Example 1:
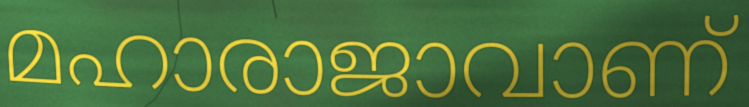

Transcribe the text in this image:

മഹാരാജാവാണ്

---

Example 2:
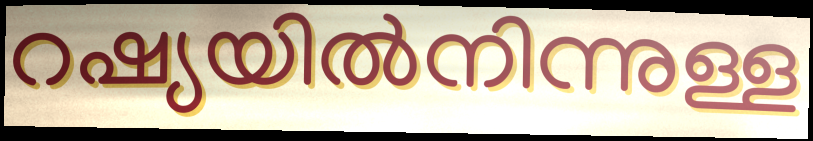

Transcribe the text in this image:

റഷ്യയിൽനിന്നുള്ള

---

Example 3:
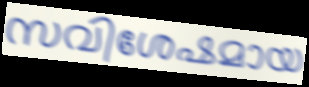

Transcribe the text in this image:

സവിശേഷമായ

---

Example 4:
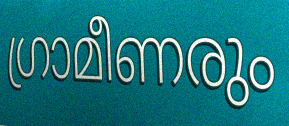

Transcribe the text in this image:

ഗ്രാമീണരും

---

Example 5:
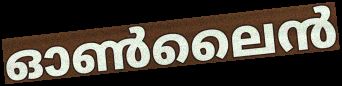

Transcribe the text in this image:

ഓൺലൈൻ